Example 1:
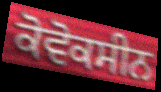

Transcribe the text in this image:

ਕੋਵੋਕਸੀਨ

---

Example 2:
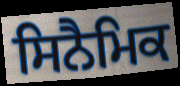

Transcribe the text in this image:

ਸਿਨੈਮਿਕ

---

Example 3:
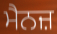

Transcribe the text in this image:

ਮੈਨਜ਼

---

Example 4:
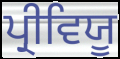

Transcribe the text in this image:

ਪ੍ਰੀਵਿਯੂ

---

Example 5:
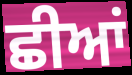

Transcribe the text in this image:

ਛੀਆਂ